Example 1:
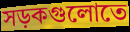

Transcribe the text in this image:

সড়কগুলোতে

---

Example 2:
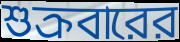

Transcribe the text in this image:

শুক্রবারের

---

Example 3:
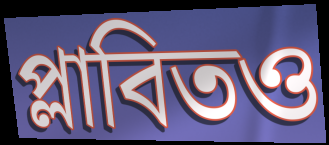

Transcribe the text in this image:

প্লাবিতও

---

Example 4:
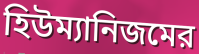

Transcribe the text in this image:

হিউম্যানিজমের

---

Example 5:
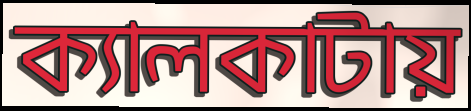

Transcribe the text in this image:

ক্যালকাটায়